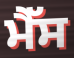
ਮੈੱਸ